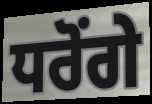
ਧਰੋਂਗੇ